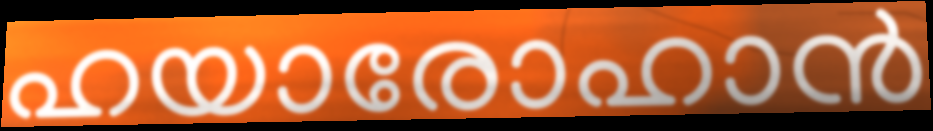
ഹയാരോഹാൻ